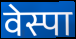
वेस्‍पा